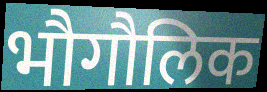
भौगौलिक